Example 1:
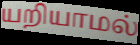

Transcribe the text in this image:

யறியாமல்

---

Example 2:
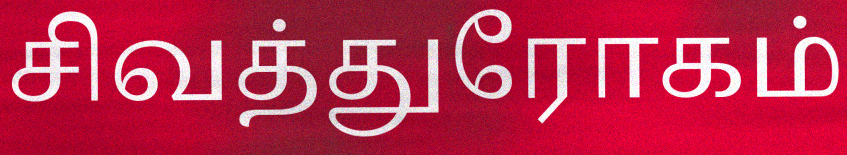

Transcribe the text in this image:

சிவத்துரோகம்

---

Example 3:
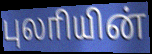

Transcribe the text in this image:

புலரியின்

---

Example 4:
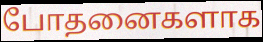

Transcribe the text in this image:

போதனைகளாக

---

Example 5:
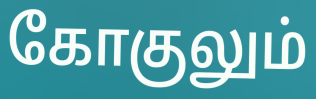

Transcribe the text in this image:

கோகுலும்